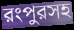
রংপুরসহ